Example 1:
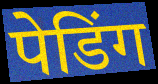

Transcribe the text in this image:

पेडिंग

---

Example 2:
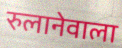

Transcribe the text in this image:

रुलानेवाला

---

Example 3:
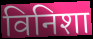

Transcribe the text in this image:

विनिशा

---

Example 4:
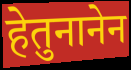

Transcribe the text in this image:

हेतुनानेन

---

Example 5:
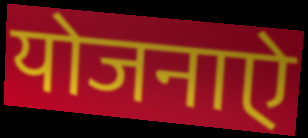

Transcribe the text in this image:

योजनाऐ